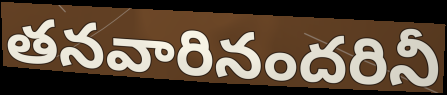
తనవారినందరినీ